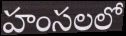
హంసలలో